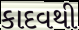
કાદવથી